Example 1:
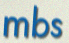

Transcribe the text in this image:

mbs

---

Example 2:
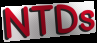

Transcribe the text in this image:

NTDs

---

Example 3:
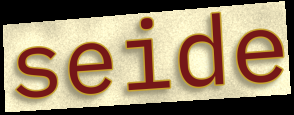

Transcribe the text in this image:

seide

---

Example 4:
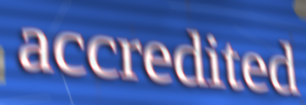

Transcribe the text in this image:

accredited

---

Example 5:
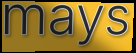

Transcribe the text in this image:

mays